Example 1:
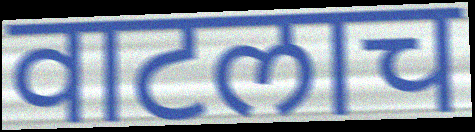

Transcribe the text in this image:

वाटलाच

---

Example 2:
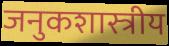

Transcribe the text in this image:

जनुकशास्त्रीय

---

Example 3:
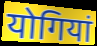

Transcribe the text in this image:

योगियां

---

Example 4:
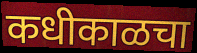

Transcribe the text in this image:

कधीकाळचा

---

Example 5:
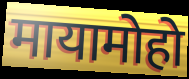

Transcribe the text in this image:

मायामोहो